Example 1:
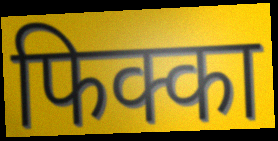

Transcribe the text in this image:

फिक्का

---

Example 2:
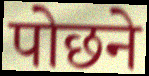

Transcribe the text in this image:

पोछने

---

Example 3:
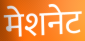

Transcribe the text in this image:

मेशनेट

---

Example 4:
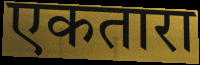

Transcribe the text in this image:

एकतारा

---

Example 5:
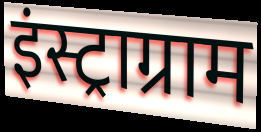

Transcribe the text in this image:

इंस्ट्राग्राम